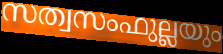
സത്വസംഫുല്ലയും